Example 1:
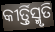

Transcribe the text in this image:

କୀର୍ତ୍ତିସ୍ମୃତି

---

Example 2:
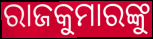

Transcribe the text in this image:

ରାଜକୁମାରଙ୍କୁ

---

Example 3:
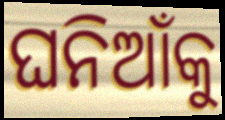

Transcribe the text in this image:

ଘନିଆଁକୁ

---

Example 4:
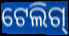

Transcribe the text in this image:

ଟେଲିଗ୍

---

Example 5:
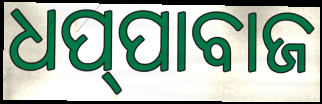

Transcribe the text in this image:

ଧପ୍‌ପାବାଜ